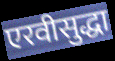
एरवीसुद्धा